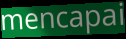
mencapai